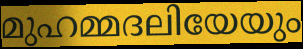
മുഹമ്മദലിയേയും